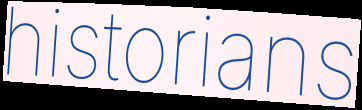
historians